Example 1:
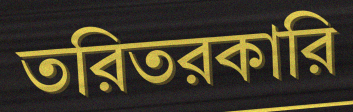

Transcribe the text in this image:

তরিতরকারি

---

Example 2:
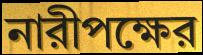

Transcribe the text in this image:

নারীপক্ষের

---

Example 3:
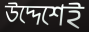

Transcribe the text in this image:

উদ্দেশেই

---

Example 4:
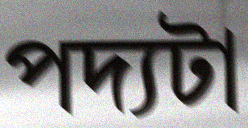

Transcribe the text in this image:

পদ্যটা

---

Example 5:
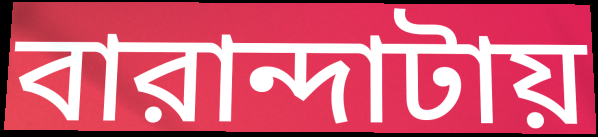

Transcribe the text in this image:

বারান্দাটায়